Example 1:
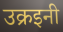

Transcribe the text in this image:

उक्रइनी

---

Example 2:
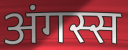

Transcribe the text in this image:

अंगस्स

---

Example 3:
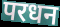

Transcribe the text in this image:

परधन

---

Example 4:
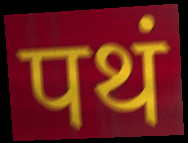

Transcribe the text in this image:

पथं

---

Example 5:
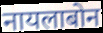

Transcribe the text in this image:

नायलाबोन